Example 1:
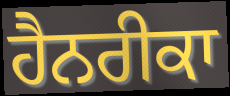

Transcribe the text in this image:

ਹੈਨਰੀਕਾ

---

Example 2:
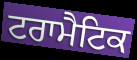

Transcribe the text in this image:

ਟਰਾਮੈਟਿਕ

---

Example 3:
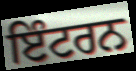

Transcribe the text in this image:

ਇੰਟਰਨ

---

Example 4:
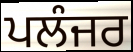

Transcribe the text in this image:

ਪਲੰਜਰ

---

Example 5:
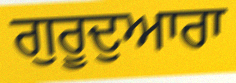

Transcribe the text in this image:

ਗੁਰੂਦੁਆਰਾ